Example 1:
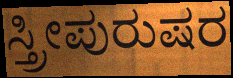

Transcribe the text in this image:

ಸ್ತ್ರೀಪುರುಷರ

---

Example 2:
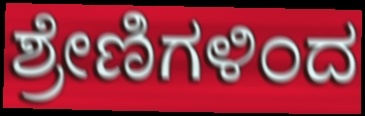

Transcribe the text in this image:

ಶ್ರೇಣಿಗಳಿಂದ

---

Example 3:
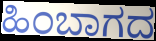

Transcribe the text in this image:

ಹಿಂಬಾಗದ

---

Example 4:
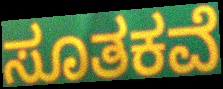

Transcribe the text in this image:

ಸೂತಕವೆ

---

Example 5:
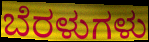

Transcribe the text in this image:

ಬೆರಳುಗಳು